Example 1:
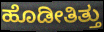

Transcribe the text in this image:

ಹೊಡೀತಿತ್ತು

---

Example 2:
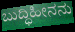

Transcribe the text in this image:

ಬುದ್ಧಿಹೀನನು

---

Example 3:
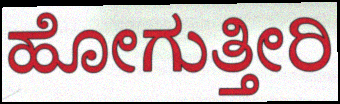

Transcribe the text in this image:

ಹೋಗುತ್ತೀರಿ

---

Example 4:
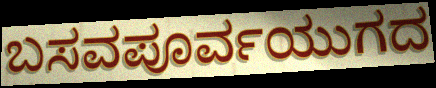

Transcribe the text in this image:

ಬಸವಪೂರ್ವಯುಗದ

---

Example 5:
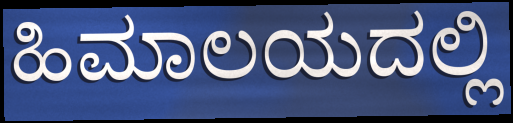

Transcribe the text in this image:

ಹಿಮಾಲಯದಲ್ಲಿ